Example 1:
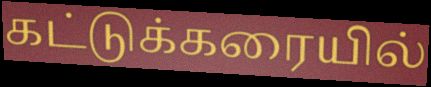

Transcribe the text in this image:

கட்டுக்கரையில்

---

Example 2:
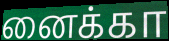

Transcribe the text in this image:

னைக்கா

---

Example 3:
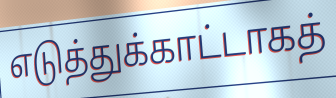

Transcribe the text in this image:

எடுத்துக்காட்டாகத்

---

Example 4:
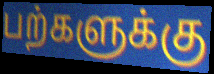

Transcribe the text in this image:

பற்களுக்கு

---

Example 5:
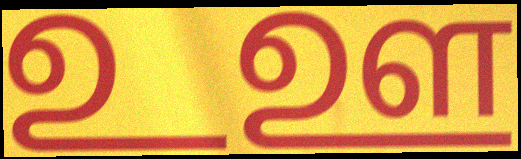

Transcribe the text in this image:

உஊ